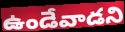
ఉండేవాడని